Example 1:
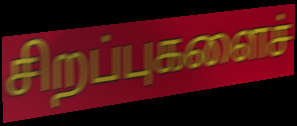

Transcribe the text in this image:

சிறப்புகளைச்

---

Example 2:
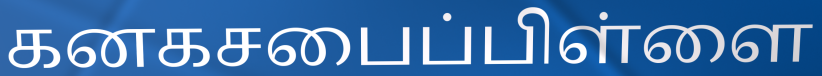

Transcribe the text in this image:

கனகசபைப்பிள்ளை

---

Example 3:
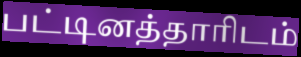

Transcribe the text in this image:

பட்டினத்தாரிடம்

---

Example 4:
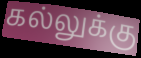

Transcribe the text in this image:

கல்லுக்கு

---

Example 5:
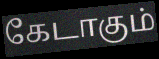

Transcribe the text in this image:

கேடாகும்